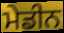
ਮੇਡੀਨ